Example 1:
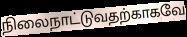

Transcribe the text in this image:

நிலைநாட்டுவதற்காகவே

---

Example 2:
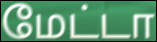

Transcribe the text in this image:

மேட்டா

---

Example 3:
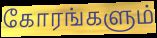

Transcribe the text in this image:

கோரங்களும்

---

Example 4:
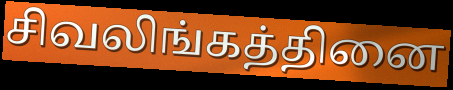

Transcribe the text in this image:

சிவலிங்கத்தினை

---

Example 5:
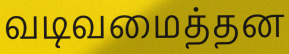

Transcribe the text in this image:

வடிவமைத்தன